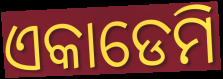
ଏକାଡେମି